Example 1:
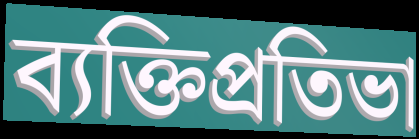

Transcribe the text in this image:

ব্যক্তিপ্রতিভা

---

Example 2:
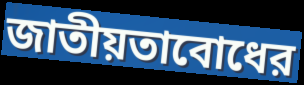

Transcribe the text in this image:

জাতীয়তাবোধের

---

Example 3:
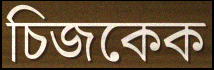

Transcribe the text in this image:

চিজকেক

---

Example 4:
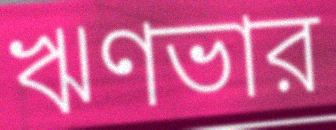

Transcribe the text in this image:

ঋণভার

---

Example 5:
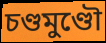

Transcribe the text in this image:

চণ্ডমুণ্ডৌ